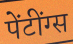
पेंटींग्स